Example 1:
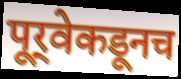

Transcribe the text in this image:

पूर्वेकडूनच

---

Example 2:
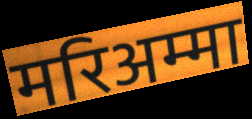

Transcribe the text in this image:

मरिअम्मा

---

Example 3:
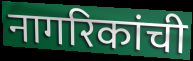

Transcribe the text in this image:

नागरिकांची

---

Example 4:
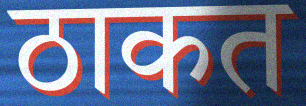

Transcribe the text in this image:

ठाकत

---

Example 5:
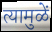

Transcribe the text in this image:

त्यामुळें